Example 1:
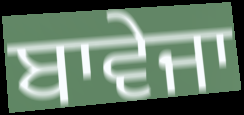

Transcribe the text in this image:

ਬਾਵੇਜਾ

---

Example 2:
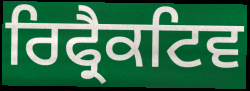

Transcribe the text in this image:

ਰਿਫ੍ਰੈਕਟਿਵ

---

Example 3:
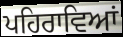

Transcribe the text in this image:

ਪਹਿਰਾਵਿਆਂ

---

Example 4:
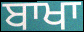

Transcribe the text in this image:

ਬਾਖਾ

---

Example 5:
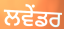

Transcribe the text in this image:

ਲਵੇਂਡਰ